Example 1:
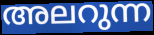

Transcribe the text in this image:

അലറുന്ന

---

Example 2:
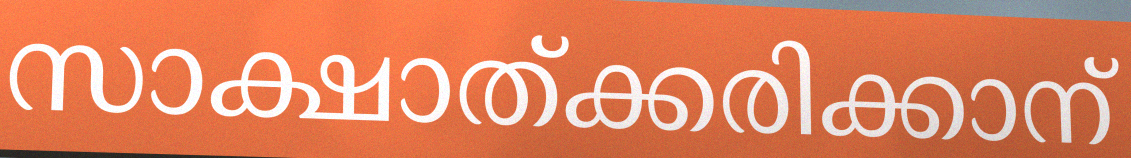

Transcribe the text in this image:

സാക്ഷാത്ക്കരിക്കാന്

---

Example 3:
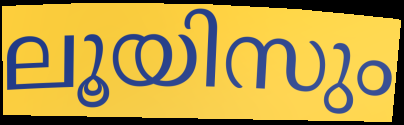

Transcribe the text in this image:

ലൂയിസും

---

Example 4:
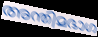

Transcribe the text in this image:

അന്തിമഭാഗ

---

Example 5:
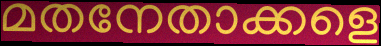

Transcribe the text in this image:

മതനേതാക്കളെ